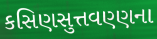
કસિણસુત્તવણ્ણના